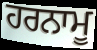
ਹਰਨਾਮੂ